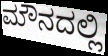
ಮೌನದಲ್ಲಿ